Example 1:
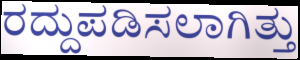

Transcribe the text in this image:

ರದ್ದುಪಡಿಸಲಾಗಿತ್ತು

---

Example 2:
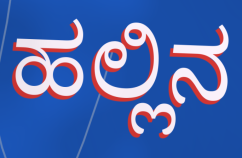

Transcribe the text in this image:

ಹಲ್ಲಿನ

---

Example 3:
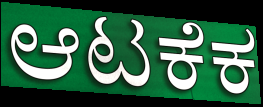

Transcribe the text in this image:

ಆಟಕೆಕ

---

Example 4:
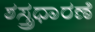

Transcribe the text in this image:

ಶಸ್ತ್ರಧಾರಣೆ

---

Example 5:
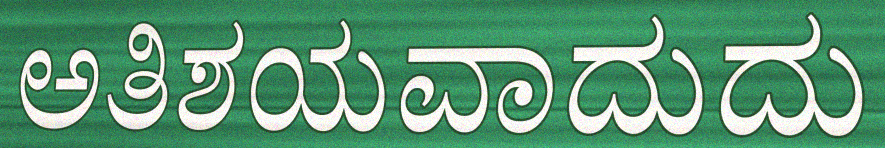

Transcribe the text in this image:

ಅತಿಶಯವಾದುದು